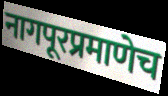
नागपूरप्रमाणेच